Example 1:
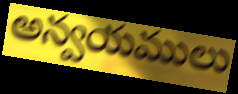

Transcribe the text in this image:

అన్వయములు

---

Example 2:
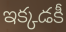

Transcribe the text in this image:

ఇక్కడకీ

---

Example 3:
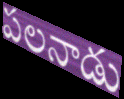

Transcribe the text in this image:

పలనాడు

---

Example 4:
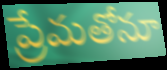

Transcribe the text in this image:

ప్రేమతోనూ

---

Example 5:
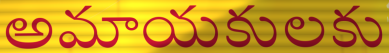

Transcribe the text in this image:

అమాయకులకు